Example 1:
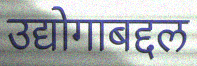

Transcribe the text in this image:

उद्योगाबद्दल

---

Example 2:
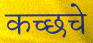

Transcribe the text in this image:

कच्छचे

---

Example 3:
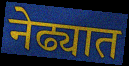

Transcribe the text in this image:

नेढ्यात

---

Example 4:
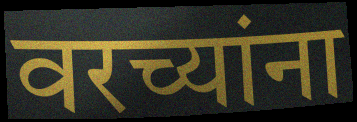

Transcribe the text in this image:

वरच्यांना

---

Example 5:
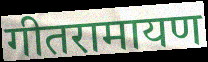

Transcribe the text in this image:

गीतरामायण